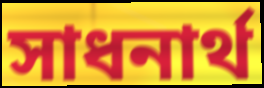
সাধনার্থ